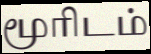
மூரிடம்